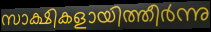
സാക്ഷികളായിത്തീർന്നു